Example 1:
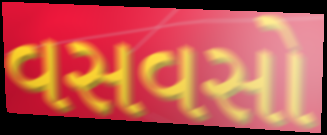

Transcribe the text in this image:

વસવસો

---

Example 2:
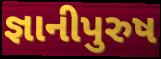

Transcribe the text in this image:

જ્ઞાનીપુરુષ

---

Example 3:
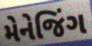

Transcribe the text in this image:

મેનેજિંગ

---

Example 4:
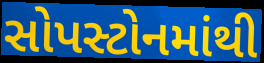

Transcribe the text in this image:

સોપસ્ટોનમાંથી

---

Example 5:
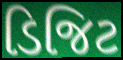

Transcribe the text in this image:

ડિજિટ